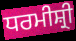
ਧਰਮੀਸ਼੍ਰੀ